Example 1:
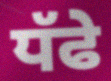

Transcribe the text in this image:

ਧੱਫੇ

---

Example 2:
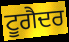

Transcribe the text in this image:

ਟੂਗੈਦਰ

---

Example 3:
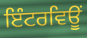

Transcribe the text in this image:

ਇੰਟਰਵਿਊਂ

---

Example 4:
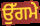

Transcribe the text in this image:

ਉੱਗਮੇ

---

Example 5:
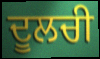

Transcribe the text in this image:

ਦੂਲਚੀ